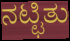
ನಟ್ಟಿತು